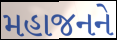
મહાજનને